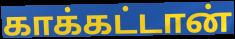
காக்கட்டான்